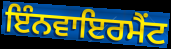
ਇੰਨਵਾਇਰਮੈਂਟ